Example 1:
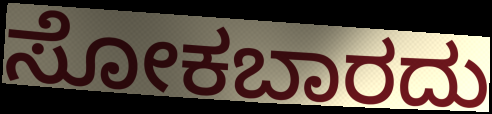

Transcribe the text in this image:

ಸೋಕಬಾರದು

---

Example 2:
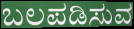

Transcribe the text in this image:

ಬಲಪಡಿಸುವ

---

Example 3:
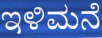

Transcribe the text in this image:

ಇಳಿಮನೆ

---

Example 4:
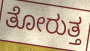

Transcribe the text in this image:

ತೋರುತ್ತ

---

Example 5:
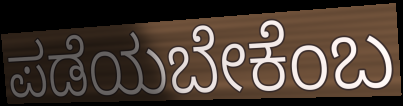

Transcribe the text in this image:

ಪಡೆಯಬೇಕೆಂಬ